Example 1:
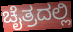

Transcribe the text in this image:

ಚೈತ್ರದಲ್ಲಿ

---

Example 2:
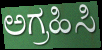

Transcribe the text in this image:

ಅಗ್ರಹಿಸಿ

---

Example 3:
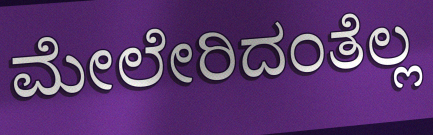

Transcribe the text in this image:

ಮೇಲೇರಿದಂತೆಲ್ಲ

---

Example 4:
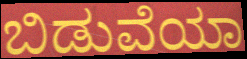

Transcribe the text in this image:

ಬಿಡುವೆಯಾ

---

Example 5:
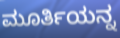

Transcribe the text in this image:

ಮೂರ್ತಿಯನ್ನ